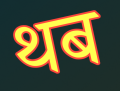
थब